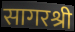
सागरश्री